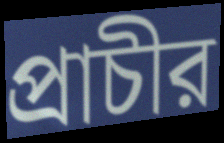
প্রাচীর